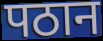
पठान